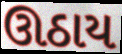
ઊઠાય